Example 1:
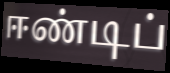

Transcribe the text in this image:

ஈண்டிப்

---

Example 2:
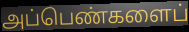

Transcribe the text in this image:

அப்பெண்களைப்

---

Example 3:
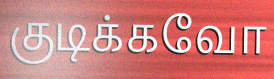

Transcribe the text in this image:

குடிக்கவோ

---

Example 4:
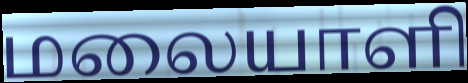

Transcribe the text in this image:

மலையாளி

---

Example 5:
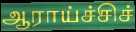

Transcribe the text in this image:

ஆராய்ச்சிச்